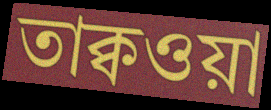
তাক্বওয়া